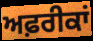
ਅਫ਼ਰੀਕਾਂ